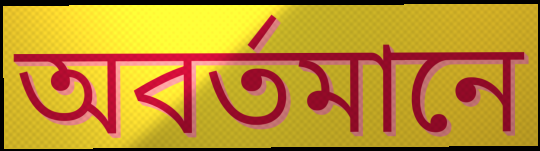
অবর্তমানে